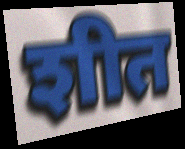
शीत